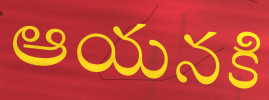
ఆయనకి